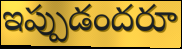
ఇప్పుడందరూ